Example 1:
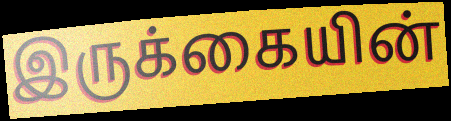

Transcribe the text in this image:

இருக்கையின்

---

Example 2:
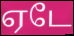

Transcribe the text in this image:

ஏடே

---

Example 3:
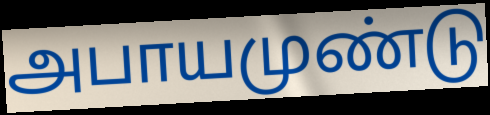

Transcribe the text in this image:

அபாயமுண்டு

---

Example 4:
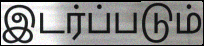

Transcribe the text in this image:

இடர்ப்படும்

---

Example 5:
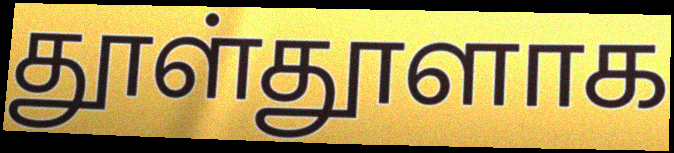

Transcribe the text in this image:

தூள்தூளாக